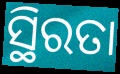
ସ୍ଥିରତା